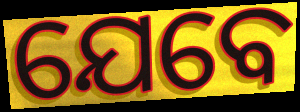
ଯେବେ